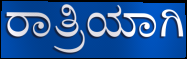
ರಾತ್ರಿಯಾಗಿ